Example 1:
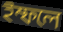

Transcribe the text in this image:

ইম্ফলে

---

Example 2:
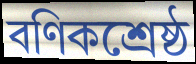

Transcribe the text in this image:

বণিকশ্রেষ্ঠ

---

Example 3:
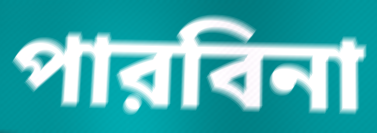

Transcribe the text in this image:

পারবিনা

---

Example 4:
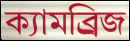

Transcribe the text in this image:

ক্যামব্র্রিজ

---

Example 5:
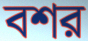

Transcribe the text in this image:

বশর